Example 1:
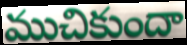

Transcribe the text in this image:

ముచికుందా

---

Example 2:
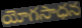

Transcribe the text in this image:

యోగసాధన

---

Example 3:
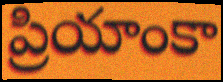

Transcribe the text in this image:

ప్రియాంకా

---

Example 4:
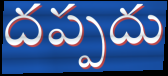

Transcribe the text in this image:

దప్పదు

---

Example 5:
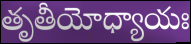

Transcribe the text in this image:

తృతీయోధ్యాయః